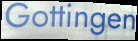
Gottingen